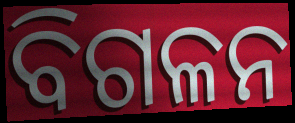
ବିଗଳନ